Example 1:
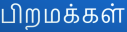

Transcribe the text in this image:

பிறமக்கள்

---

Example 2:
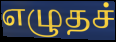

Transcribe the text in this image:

எழுதச்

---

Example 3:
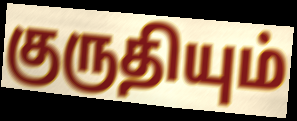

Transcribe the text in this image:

குருதியும்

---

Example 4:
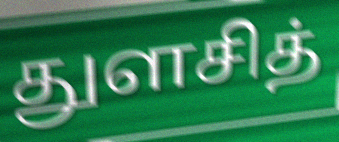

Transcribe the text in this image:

துளசித்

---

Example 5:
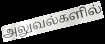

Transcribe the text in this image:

அலுவல்களில்